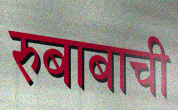
रुबाबाची